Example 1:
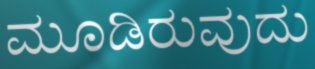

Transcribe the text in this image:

ಮೂಡಿರುವುದು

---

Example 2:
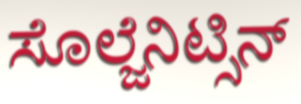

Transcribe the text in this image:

ಸೊಲ್ಜೆನಿಟ್ಸಿನ್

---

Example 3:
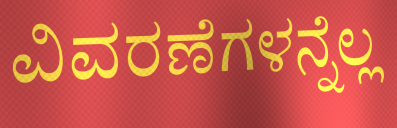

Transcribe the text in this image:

ವಿವರಣೆಗಳನ್ನೆಲ್ಲ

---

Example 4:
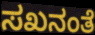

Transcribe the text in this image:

ಸಖನಂತೆ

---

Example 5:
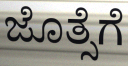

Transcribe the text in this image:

ಜೊತ್ಸೆಗೆ